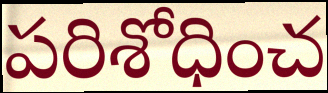
పరిశోధించ